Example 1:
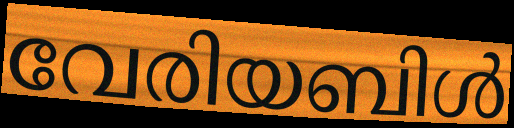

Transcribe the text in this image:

വേരിയബിൾ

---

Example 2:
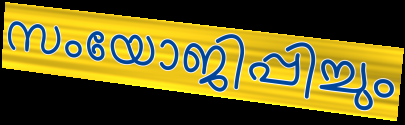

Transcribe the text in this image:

സംയോജിപ്പിച്ചും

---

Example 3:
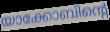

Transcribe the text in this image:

യാക്കോബിന്റെ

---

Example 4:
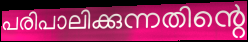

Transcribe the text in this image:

പരിപാലിക്കുന്നതിന്റെ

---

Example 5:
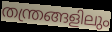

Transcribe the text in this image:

തന്ത്രങ്ങളിലും